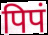
पिपं